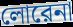
লোরেনা